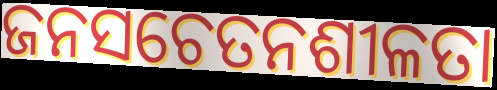
ଜନସଚେତନଶୀଳତା